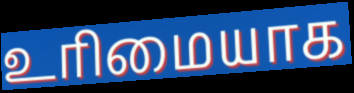
உரிமையாக